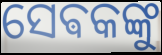
ସେଵକଙ୍କୁ